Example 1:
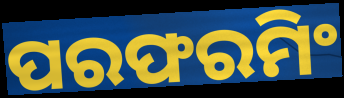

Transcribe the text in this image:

ପରଫରମିଂ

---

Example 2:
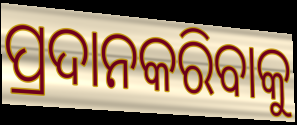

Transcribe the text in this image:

ପ୍ରଦାନକରିବାକୁ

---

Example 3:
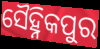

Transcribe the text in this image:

ସୈହ୍ନିକପୁର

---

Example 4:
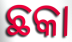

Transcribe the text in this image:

ଛକା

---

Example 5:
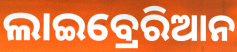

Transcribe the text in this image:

ଲାଇବ୍ରେରିଆନ